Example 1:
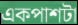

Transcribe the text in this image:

একপাশটা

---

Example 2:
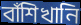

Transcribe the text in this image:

বাঁশিখানি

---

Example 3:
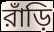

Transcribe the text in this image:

রাঁড়ি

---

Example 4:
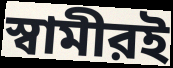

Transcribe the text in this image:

স্বামীরই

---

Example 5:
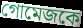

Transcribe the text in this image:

গোমেজকে